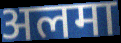
अलमा